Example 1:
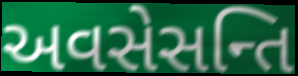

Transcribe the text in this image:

અવસેસન્તિ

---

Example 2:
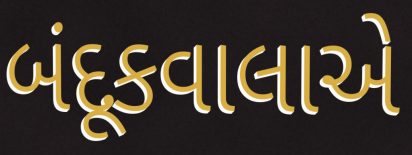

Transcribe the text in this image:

બંદૂકવાલાએ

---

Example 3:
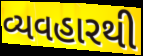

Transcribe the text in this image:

વ્યવહારથી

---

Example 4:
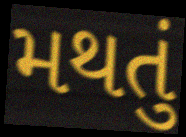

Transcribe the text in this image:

મથતું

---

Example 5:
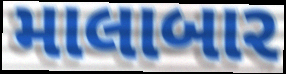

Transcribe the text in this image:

માલાબાર